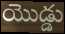
యొడ్డు